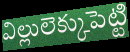
విల్లులెక్కుపెట్టి